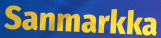
Sanmarkka